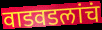
वाडवडलांचं